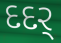
દદર્